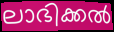
ലാഭിക്കൽ